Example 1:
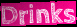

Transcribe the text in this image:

Drinks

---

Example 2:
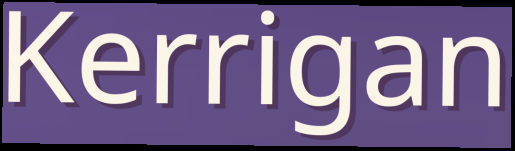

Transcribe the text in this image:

Kerrigan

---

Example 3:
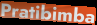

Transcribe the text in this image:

Pratibimba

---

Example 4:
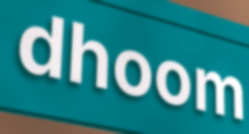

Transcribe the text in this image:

dhoom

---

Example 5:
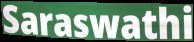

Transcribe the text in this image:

Saraswathi